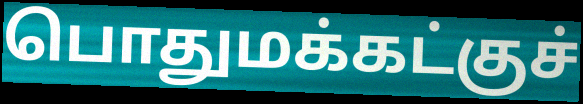
பொதுமக்கட்குச்